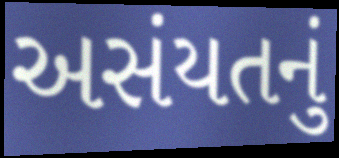
અસંયતનું